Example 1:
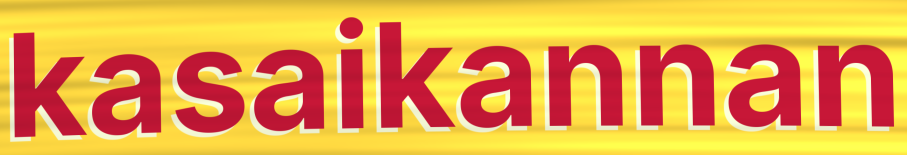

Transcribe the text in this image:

kasaikannan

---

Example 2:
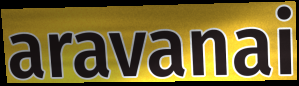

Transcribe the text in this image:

aravanai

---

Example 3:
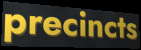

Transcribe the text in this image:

precincts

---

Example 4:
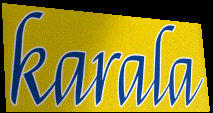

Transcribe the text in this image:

karala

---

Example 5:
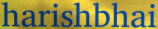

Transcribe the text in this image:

harishbhai